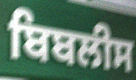
ਬਿਬਲੀਸ